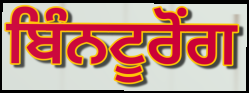
ਬਿੰਨਟੂਰੋਂਗ